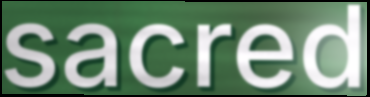
sacred